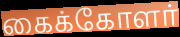
கைக்கோளர்